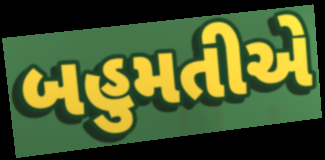
બહુમતીએ